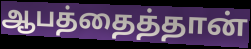
ஆபத்தைத்தான்